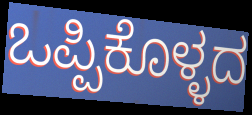
ಒಪ್ಪಿಕೊಳ್ಳದ